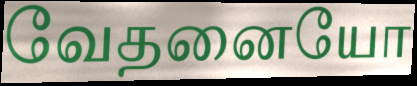
வேதனையோ